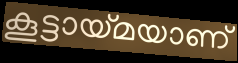
കൂട്ടായ്മയാണ്